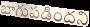
బాగుపడిందని